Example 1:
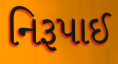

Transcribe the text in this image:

નિરૂપાઈ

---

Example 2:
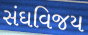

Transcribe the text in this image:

સંઘવિજય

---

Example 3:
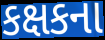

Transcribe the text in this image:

કક્ષકના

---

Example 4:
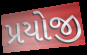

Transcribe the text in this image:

પ્રયોજી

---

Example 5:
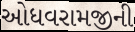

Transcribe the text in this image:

ઓધવરામજીની